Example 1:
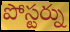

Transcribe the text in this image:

పోస్టర్ను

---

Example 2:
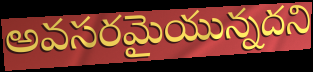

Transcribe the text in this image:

అవసరమైయున్నదని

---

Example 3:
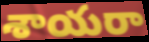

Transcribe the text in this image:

శాయరా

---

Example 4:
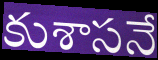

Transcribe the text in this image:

కుశాసనే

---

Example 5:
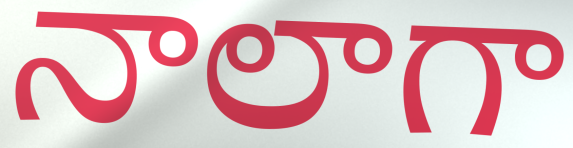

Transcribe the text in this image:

నాలాగా